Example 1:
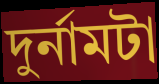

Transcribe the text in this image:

দুর্নামটা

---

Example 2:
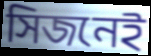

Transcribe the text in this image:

সিজনেই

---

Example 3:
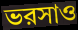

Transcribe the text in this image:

ভরসাও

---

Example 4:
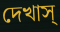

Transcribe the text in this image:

দেখাস্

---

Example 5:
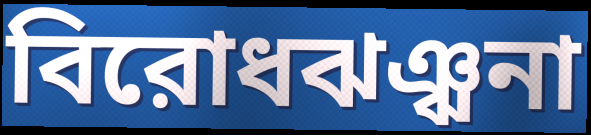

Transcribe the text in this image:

বিরোধঝঞ্ঝনা